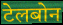
टेलबोन